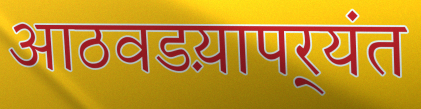
आठवडय़ापर्यंत